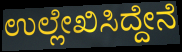
ಉಲ್ಲೇಖಿಸಿದ್ದೇನೆ